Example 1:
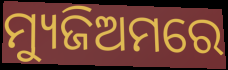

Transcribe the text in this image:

ମ୍ୟୁଜିଅମରେ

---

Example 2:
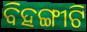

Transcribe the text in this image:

ବିହଙ୍ଗୀଟି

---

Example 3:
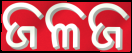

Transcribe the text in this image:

ଜଳଜ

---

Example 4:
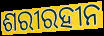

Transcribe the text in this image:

ଶରୀରହୀନ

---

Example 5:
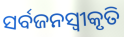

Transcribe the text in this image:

ସର୍ବଜନସ୍ୱୀକୃତି